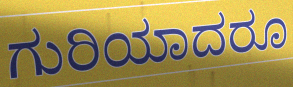
ಗುರಿಯಾದರೂ